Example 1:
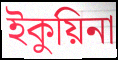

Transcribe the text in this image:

ইকুয়িনা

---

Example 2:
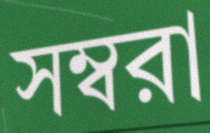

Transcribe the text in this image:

সম্বরা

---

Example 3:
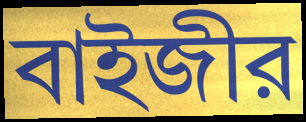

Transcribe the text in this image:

বাইজীর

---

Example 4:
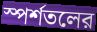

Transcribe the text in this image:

স্পর্শতলের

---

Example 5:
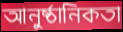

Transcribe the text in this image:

আনুষ্ঠানিকতা